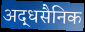
अद्धसैनिक